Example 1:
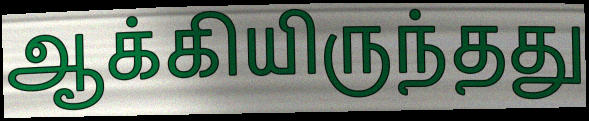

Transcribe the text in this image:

ஆக்கியிருந்தது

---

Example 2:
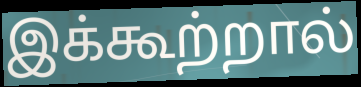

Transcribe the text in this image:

இக்கூற்றால்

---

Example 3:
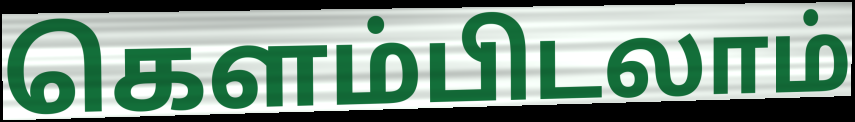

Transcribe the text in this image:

கெளம்பிடலாம்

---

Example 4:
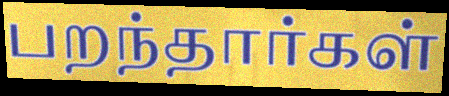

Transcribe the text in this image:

பறந்தார்கள்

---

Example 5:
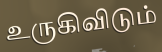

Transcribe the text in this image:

உருகிவிடும்